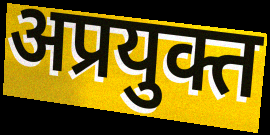
अप्रयुक्त